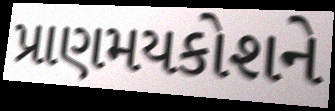
પ્રાણમયકોશને